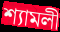
শ্যামলী